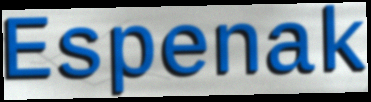
Espenak